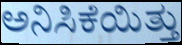
ಅನಿಸಿಕೆಯಿತ್ತು